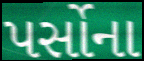
પર્સોના